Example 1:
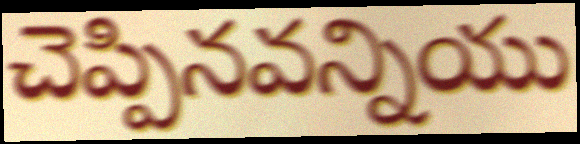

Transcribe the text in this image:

చెప్పినవన్నియు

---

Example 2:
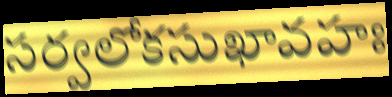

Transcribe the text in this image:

సర్వలోకసుఖావహః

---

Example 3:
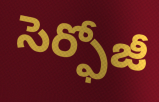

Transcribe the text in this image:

సెర్ఫోజీ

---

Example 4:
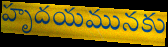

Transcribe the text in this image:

హృదయమునకు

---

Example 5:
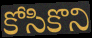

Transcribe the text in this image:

కోసికొని